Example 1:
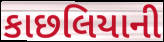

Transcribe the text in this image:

કાછલિયાની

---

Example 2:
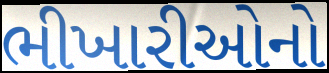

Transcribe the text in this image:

ભીખારીઓનો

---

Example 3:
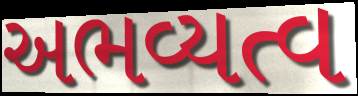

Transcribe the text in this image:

અભવ્યત્વ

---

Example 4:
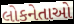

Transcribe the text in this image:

લોકનેતાઓ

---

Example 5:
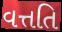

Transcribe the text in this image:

વત્તતિ